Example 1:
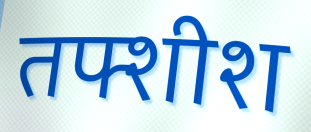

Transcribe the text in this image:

तफ्शीश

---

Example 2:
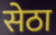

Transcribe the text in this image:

सेठा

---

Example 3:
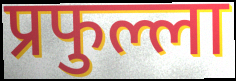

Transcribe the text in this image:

प्रफुल्ला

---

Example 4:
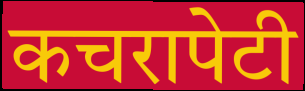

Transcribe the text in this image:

कचरापेटी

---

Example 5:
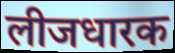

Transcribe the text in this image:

लीजधारक